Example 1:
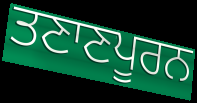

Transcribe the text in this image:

ਤਣਾਣਪੂਰਨ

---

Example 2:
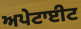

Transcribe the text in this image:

ਅਪੇਟਾਈਟ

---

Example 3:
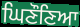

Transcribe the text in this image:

ਘਿਣੌਣਿਆ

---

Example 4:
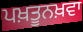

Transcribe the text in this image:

ਪਖ਼ਤੂਨਖ਼ਵਾ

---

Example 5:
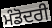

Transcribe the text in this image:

ਮੰਡੋਦਰੀ